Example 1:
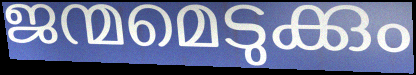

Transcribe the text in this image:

ജന്മമെടുക്കും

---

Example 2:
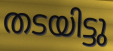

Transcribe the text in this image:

തടയിട്ടു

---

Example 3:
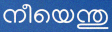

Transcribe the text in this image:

നീയെന്തു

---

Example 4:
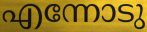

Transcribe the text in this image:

എന്നോടു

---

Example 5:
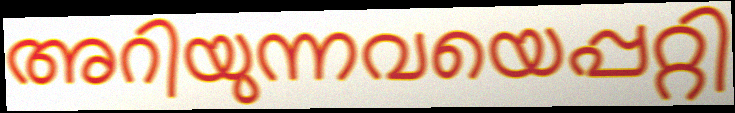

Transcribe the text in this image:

അറിയുന്നവയെപ്പറ്റി